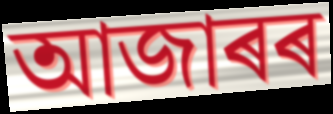
আজাৰৰ